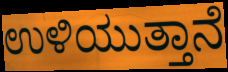
ಉಳಿಯುತ್ತಾನೆ